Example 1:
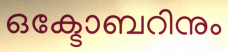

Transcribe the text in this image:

ഒക്ടോബറിനും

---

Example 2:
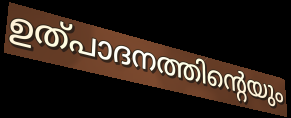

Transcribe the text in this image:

ഉത്പാദനത്തിന്റെയും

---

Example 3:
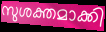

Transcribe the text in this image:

സുശക്തമാക്കി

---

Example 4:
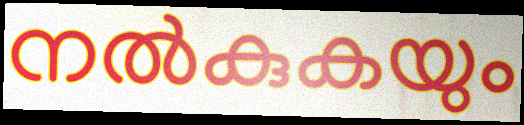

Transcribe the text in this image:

നൽകുകയും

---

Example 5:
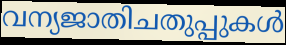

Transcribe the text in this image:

വന്യജാതിചതുപ്പുകൾ